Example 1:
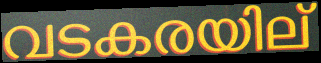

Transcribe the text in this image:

വടകരയില്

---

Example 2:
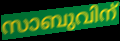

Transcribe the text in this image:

സാബുവിന്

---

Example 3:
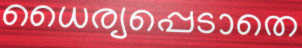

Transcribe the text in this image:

ധൈര്യപ്പെടാതെ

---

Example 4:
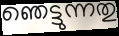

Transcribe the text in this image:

ഞെട്ടുന്നതു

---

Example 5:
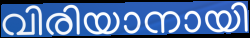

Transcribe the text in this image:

വിരിയാനായി